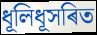
ধূলিধূসৰিত